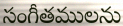
సంగీతములను